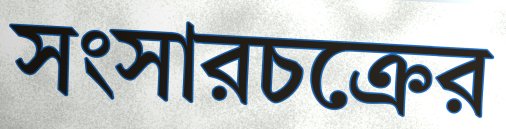
সংসারচক্রের